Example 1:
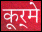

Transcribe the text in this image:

कूर्मे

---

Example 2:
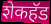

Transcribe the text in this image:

शेकहॅड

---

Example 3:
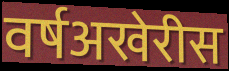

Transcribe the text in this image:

वर्षअखेरीस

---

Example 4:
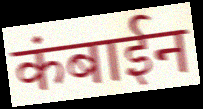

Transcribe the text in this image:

कंबाईन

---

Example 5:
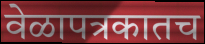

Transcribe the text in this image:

वेळापत्रकातच